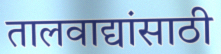
तालवाद्यांसाठी